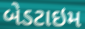
બેડટાઇમ